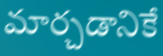
మార్చడానికే